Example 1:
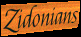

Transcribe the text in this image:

Zidonians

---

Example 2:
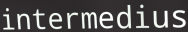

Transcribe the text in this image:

intermedius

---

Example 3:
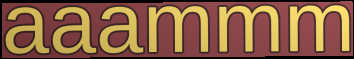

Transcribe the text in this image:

aaammm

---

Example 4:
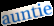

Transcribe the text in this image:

auntie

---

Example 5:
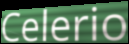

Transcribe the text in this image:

Celerio